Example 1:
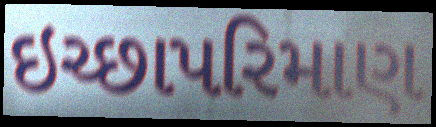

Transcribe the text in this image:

ઇચ્છાપરિમાણ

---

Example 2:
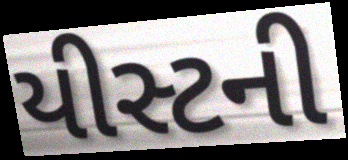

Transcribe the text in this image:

યીસ્ટની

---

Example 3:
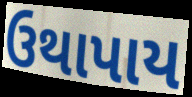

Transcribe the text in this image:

ઉથાપાય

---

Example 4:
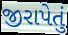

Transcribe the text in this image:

જીરાપેતું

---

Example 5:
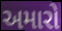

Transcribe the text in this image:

અમારો